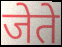
जेते